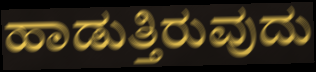
ಹಾಡುತ್ತಿರುವುದು